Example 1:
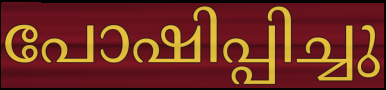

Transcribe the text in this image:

പോഷിപ്പിച്ചു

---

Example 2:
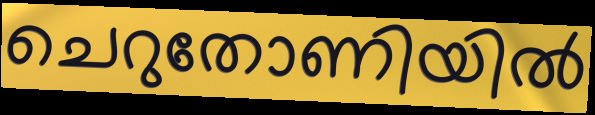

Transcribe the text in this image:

ചെറുതോണിയിൽ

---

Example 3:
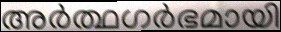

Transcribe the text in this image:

അർത്ഥഗർഭമായി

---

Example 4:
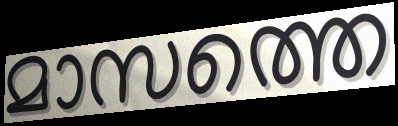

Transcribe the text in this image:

മാസത്തെ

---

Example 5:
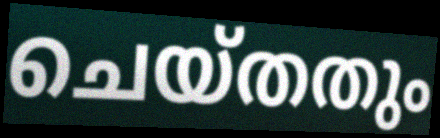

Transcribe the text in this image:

ചെയ്തതും